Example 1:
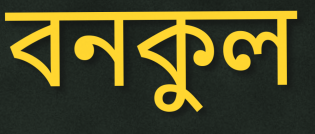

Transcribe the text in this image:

বনকুল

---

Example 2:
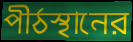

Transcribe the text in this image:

পীঠস্থানের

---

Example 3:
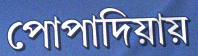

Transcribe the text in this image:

পোপাদিয়ায়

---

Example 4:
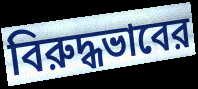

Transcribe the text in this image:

বিরুদ্ধভাবের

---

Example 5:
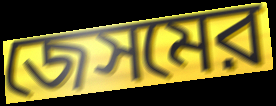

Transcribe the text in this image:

জেসমের